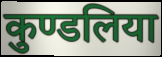
कुण्डलिया